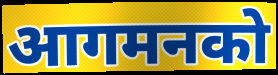
आगमनको